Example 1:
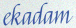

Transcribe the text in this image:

ekadam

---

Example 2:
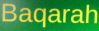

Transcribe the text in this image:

Baqarah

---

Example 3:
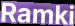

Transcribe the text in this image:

Ramki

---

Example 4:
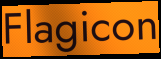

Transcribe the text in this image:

Flagicon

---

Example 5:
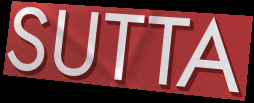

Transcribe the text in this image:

SUTTA